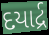
દયાર્દ્ર